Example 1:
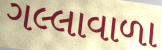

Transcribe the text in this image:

ગલ્લાવાળા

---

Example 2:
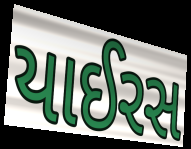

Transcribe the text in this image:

યાઈરસ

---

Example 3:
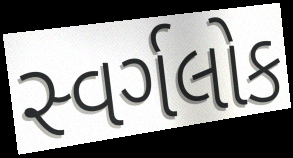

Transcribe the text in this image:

સ્વર્ગલોક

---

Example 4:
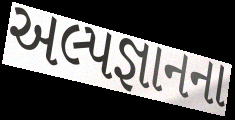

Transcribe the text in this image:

અલ્પજ્ઞાનના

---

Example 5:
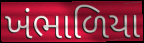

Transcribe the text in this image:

ખંભાળિયા